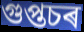
গুপ্তচৰ